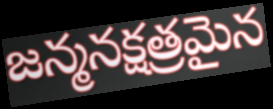
జన్మనక్షత్రమైన